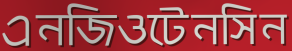
এনজিওটেনসিন